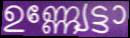
ഉണ്ണ്യേട്ടാ